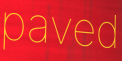
paved